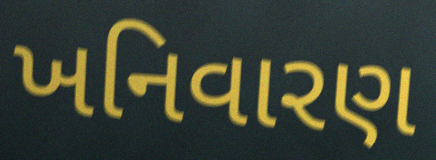
ખનિવારણ